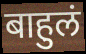
बाहुलं